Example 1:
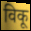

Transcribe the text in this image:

विकू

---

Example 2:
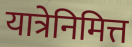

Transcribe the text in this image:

यात्रेनिमित्त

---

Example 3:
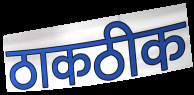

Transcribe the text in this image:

ठाकठीक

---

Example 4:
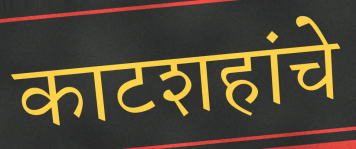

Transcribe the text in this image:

काटशहांचे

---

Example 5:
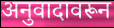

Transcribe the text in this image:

अनुवादावरून